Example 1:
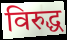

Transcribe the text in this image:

विरुद्ध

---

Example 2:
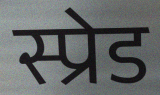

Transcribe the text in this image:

स्प्रेड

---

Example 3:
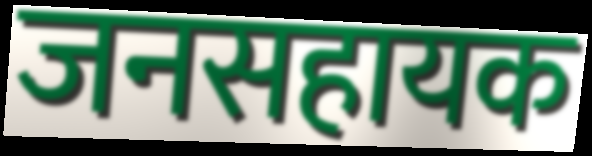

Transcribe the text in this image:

जनसहायक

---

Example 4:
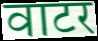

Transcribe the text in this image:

वाटर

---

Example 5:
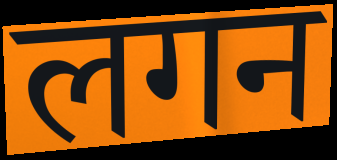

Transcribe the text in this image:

लगन